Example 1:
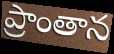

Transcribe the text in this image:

ప్రాంతాన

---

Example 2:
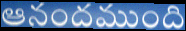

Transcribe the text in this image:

ఆనందముంది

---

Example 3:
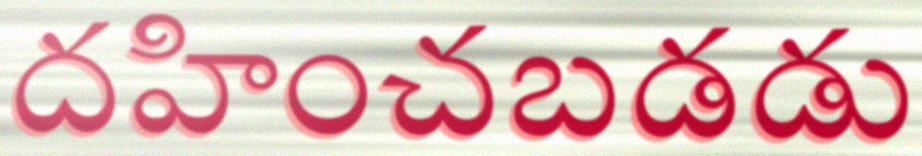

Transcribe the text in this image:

దహించబడడు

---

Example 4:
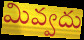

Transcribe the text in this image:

మివ్వదు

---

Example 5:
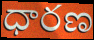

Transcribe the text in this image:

ధారణ